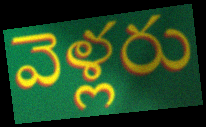
వెళ్లరు